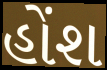
હોંશ